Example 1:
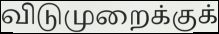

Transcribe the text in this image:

விடுமுறைக்குக்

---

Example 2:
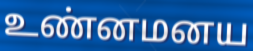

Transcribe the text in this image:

உண்னமனய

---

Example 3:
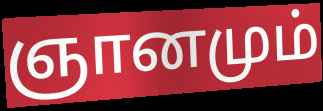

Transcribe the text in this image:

ஞானமும்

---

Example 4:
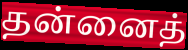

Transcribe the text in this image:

தன்னைத்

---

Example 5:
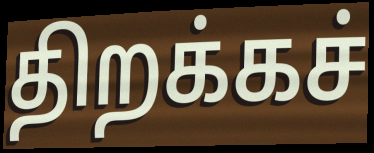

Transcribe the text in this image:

திறக்கச்